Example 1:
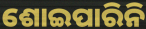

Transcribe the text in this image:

ଶୋଇପାରିନି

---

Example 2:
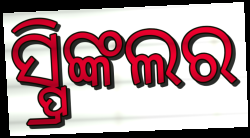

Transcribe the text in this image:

ସ୍ପ୍ରିଙ୍କଲର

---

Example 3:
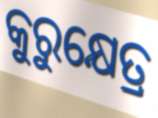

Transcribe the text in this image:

କୁରୁକ୍ଷେତ୍ର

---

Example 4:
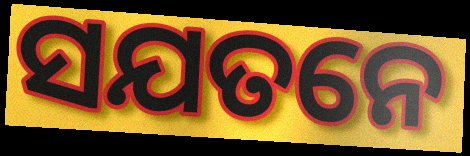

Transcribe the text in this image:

ସଯତନେ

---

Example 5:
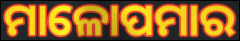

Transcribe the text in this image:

ମାଳୋପମାର